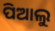
ପିଆଲୁ